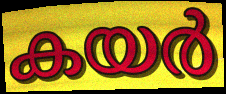
കയർ